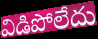
విడిపోలేదు